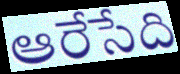
ఆరేసేది